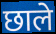
छाले